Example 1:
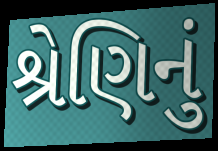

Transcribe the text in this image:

શ્રેણિનું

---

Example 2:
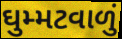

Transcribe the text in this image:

ઘુમ્મટવાળું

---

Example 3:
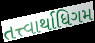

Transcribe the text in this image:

તત્ત્વાર્થાધિગમ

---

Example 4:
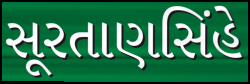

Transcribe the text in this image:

સૂરતાણસિંહે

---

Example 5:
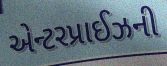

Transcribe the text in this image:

એન્ટરપ્રાઈઝની